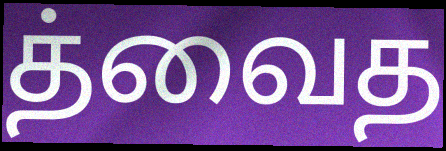
த்வைத